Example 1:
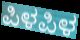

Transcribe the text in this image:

ಪಿಳಪಿಳ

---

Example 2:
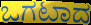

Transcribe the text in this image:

ಒಗಟಾದ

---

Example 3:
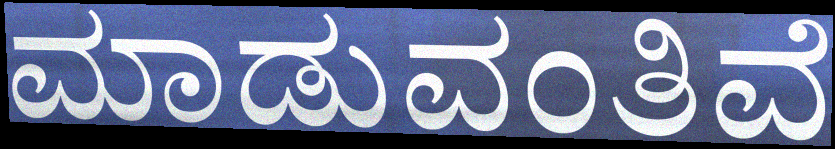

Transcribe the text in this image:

ಮಾಡುವಂತಿವೆ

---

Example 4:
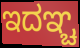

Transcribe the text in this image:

ಇದಞ್ಚ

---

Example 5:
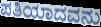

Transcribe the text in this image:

ಪತಿಯಾದವನು